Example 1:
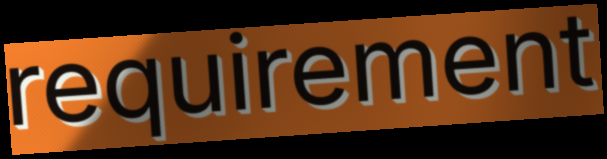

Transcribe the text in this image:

requirement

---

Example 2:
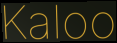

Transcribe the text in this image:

Kaloo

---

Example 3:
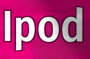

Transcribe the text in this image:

Ipod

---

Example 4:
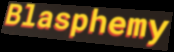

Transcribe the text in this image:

Blasphemy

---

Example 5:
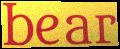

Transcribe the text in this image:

bear